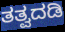
ತತ್ವದಡಿ